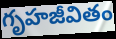
గృహజీవితం